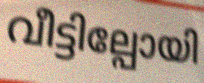
വീട്ടില്പോയി